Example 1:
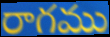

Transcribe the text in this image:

రాగము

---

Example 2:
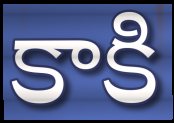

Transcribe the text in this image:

కాకి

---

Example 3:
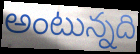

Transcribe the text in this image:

అంటున్నది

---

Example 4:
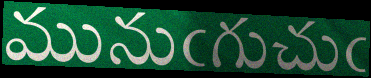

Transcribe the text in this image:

మునుఁగుచుఁ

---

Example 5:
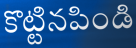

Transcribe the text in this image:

కొట్టినపిండి